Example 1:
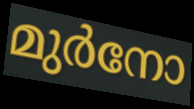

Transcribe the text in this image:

മുർനോ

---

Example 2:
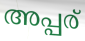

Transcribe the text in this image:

അപ്പര്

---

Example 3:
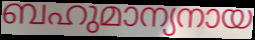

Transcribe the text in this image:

ബഹുമാന്യനായ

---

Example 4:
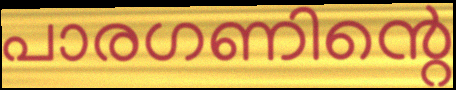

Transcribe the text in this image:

പാരഗണിന്റെ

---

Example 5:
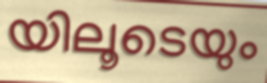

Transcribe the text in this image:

യിലൂടെയും